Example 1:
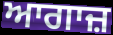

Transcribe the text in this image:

ਆਗਾਜ਼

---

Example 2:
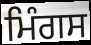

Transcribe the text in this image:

ਮਿੰਗਸ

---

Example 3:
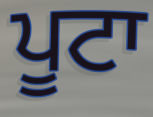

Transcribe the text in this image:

ਪੂਟਾ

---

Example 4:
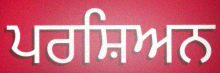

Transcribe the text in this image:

ਪਰਸ਼ਿਅਨ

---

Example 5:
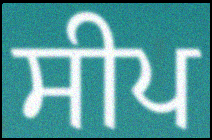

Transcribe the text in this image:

ਸੀਪ